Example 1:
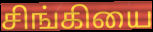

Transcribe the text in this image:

சிங்கியை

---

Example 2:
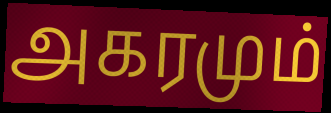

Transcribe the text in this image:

அகரமும்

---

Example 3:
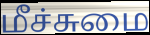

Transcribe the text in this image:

மீச்சுமை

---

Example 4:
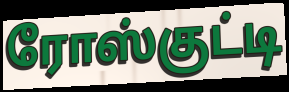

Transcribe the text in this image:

ரோஸ்குட்டி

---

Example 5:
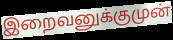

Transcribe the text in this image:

இறைவனுக்குமுன்